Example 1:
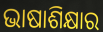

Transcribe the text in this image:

ଭାଷାଶିକ୍ଷାର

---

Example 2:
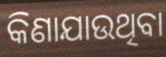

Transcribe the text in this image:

କିଣାଯାଉଥିବା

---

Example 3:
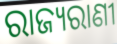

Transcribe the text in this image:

ରାଜ୍ୟରାଣୀ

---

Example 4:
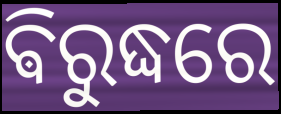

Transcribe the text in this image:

ଵିରୁଦ୍ଧରେ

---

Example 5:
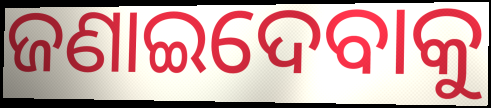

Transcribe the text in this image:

ଜଣାଇଦେବାକୁ